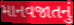
માનવજાતનું